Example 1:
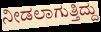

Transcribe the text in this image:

ನೀಡಲಾಗುತ್ತಿದ್ದು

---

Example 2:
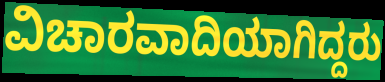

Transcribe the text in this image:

ವಿಚಾರವಾದಿಯಾಗಿದ್ದರು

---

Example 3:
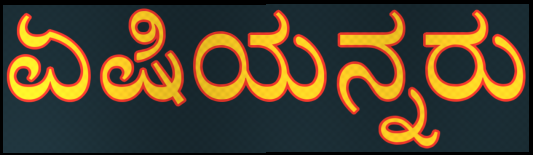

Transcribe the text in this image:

ಏಷಿಯನ್ನರು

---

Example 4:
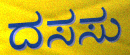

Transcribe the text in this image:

ದಸಸು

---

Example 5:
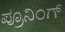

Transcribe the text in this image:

ಪ್ರೂನಿಂಗ್